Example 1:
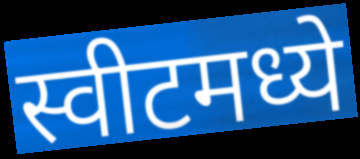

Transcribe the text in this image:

स्वीटमध्ये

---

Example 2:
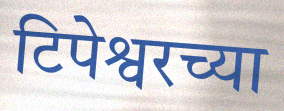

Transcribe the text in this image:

टिपेश्वरच्या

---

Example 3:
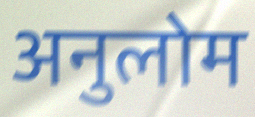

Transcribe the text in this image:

अनुलोम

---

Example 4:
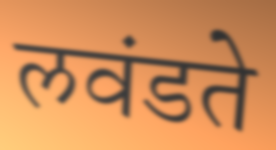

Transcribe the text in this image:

लवंडते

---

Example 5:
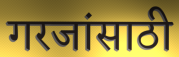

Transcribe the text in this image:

गरजांसाठी